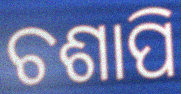
ଚଶାପି